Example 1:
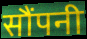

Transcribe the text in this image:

सौंपनी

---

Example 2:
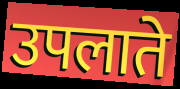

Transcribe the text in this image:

उपलाते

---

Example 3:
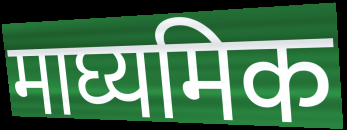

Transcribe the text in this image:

माघ्यमिक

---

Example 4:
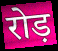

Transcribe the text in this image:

रोड़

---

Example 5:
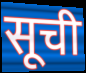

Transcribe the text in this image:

सूची